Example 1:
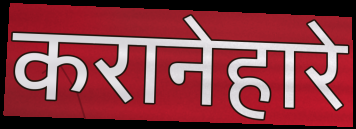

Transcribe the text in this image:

करानेहारे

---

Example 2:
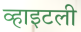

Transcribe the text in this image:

व्हाइटली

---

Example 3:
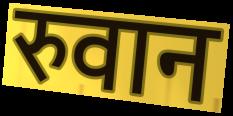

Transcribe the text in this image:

रुवान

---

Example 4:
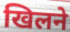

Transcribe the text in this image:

खिलने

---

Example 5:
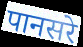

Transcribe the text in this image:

पानसरे